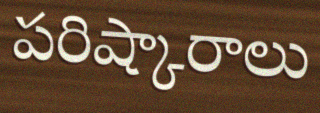
పరిష్కారాలు